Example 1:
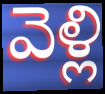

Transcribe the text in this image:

వెళ్లి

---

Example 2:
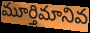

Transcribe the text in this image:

మూర్తిమానివ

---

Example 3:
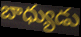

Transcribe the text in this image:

బాధ్యుడు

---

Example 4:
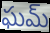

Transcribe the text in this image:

ఘమ్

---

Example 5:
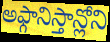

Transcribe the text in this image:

అఫ్గానిస్తాన్లోని